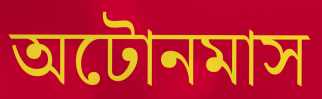
অটোনমাস